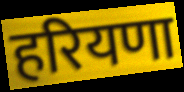
हरियणा